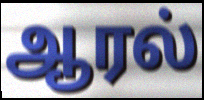
ஆரல்